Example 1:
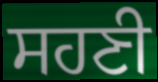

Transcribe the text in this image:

ਸਹਣੀ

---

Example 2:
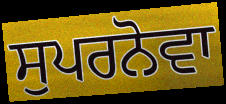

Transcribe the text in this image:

ਸੁਪਰਨੋਵਾ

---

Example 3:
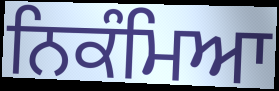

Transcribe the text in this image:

ਨਿਕੰਮਿਆ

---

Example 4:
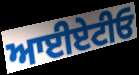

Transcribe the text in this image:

ਆਈਏਟੀਓ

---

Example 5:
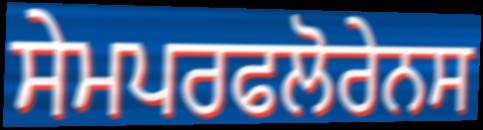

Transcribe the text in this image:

ਸੇਮਪਰਫਲੋਰੇਨਸ